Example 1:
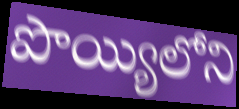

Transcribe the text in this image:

పొయ్యిలోని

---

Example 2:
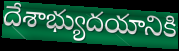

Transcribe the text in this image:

దేశాభ్యుదయానికి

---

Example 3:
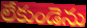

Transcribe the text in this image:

లేకుండెను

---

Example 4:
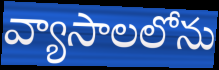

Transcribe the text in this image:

వ్యాసాలలోను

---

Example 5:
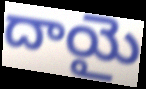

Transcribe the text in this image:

దాయై